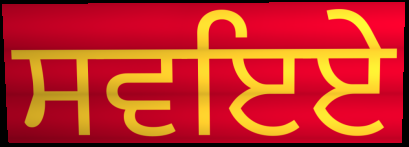
ਸਵਇਏ